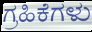
ಗ್ರಹಿಕೆಗಳು